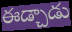
ఈడ్చాడు